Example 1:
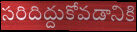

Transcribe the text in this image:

సరిదిద్దుకోవడానికి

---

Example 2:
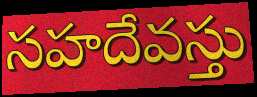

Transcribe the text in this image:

సహదేవస్తు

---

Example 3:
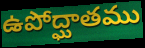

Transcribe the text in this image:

ఉపోద్ఘాతము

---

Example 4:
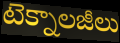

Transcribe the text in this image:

టెక్నాలజీలు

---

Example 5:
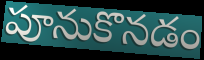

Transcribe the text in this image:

పూనుకొనడం